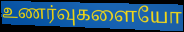
உணர்வுகளையோ